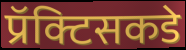
प्रॅक्टिसकडे